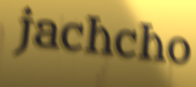
jachcho